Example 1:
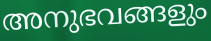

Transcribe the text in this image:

അനുഭവങ്ങളും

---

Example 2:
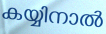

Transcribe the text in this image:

കയ്യിനാൽ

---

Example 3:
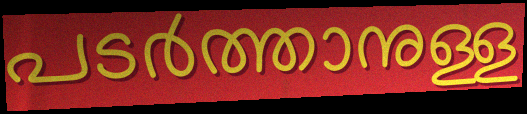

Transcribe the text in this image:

പടർത്താനുള്ള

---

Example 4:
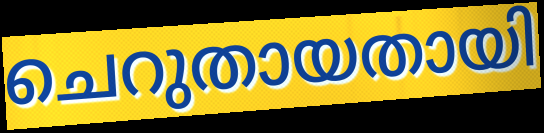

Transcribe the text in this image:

ചെറുതായതായി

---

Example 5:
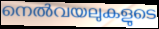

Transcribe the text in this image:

നെൽവയലുകളുടെ